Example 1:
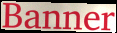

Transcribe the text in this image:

Banner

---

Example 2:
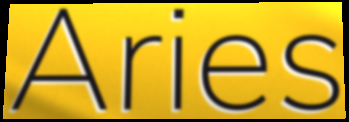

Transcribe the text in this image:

Aries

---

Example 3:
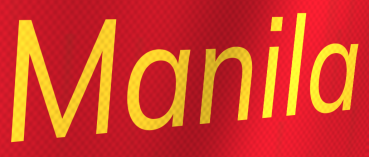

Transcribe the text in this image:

Manila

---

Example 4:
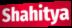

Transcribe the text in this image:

Shahitya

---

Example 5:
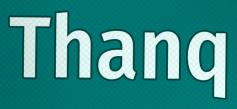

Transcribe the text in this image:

Thanq